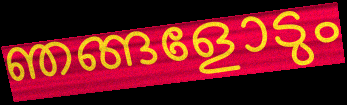
ഞങ്ങളോടും